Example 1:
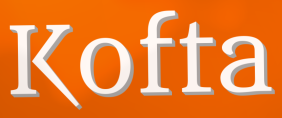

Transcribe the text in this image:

Kofta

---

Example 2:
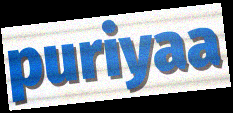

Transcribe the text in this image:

puriyaa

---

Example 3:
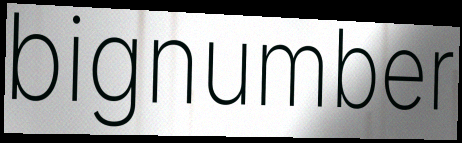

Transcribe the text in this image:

bignumber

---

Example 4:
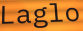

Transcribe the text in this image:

Laglo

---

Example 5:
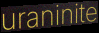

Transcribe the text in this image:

uraninite